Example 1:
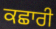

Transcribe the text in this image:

ਕਛਾਰੀ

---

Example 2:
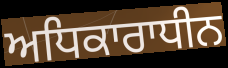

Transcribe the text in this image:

ਅਧਿਕਾਰਾਧੀਨ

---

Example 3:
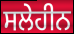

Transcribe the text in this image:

ਸਲੇਹੀਨ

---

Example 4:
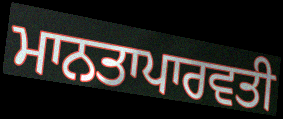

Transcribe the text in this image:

ਮਾਨਤਾਪਾਰਵਤੀ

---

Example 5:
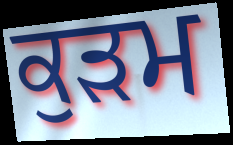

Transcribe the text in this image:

ਕੁੜਮ